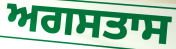
ਅਗਸਤਾਸ